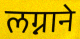
लग्नाने